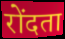
रोंदता